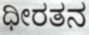
ಧೀರತನ